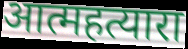
आत्महत्यारा